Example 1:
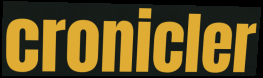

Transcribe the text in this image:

cronicler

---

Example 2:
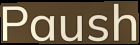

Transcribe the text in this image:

Paush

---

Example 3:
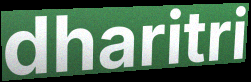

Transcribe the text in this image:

dharitri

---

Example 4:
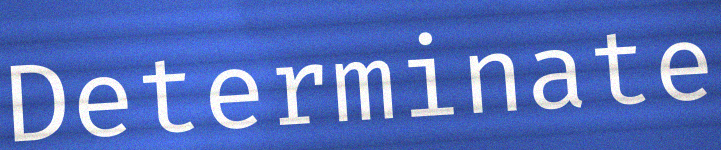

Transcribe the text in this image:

Determinate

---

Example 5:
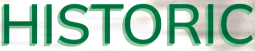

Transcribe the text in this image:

HISTORIC